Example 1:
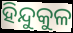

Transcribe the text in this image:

ହିନ୍ଦୁକୁଳ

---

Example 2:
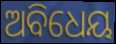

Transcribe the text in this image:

ଅବିଧେୟ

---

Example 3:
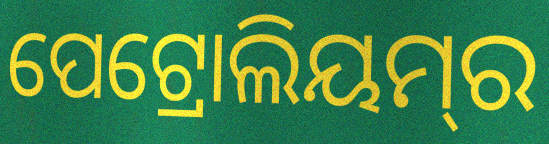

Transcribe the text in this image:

ପେଟ୍ରୋଲିୟମ୍‌ର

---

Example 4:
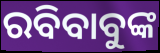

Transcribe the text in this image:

ରବିବାବୁଙ୍କ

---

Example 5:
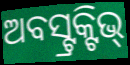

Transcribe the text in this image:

ଅବସ୍ଟ୍ରକ୍ଟିଭ୍